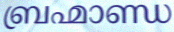
ബ്രഹ്മാണ്ഡ